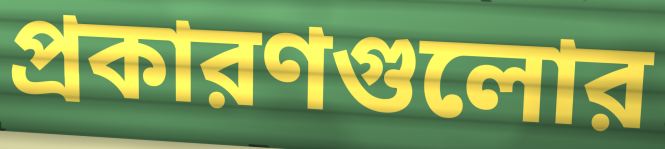
প্রকারণগুলোর